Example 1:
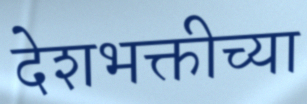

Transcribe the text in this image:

देशभक्तीच्या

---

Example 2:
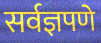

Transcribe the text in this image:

सर्वज्ञपणे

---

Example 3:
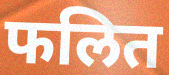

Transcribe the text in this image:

फलित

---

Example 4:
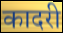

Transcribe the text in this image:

कादरी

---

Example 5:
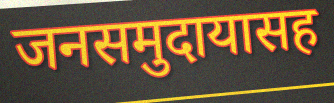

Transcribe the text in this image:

जनसमुदायासह